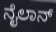
ನೈಲಾನ್